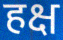
हक्ष